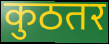
कुठतर